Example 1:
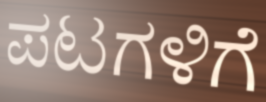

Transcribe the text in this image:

ಪಟಗಳಿಗೆ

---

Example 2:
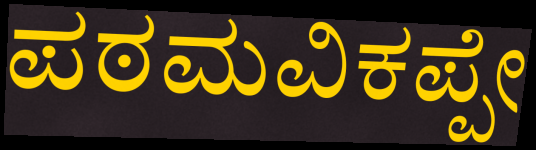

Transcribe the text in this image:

ಪಠಮವಿಕಪ್ಪೇ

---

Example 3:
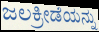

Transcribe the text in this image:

ಜಲಕ್ರೀಡೆಯನ್ನು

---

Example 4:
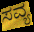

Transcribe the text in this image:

ಸವ್ಯ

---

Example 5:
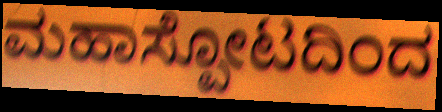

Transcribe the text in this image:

ಮಹಾಸ್ಪೋಟದಿಂದ